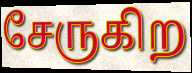
சேருகிற